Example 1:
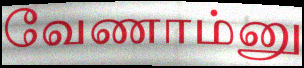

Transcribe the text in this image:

வேணாம்னு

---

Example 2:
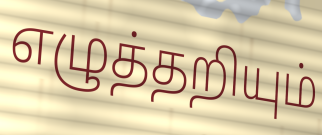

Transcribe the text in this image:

எழுத்தறியும்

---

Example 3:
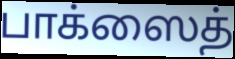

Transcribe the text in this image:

பாக்ஸைத்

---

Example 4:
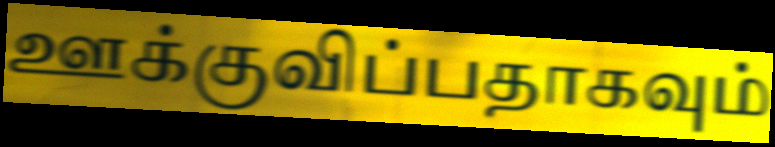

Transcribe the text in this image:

ஊக்குவிப்பதாகவும்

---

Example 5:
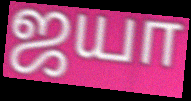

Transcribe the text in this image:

ஜயா